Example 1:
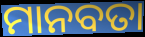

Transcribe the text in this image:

ମାନବତା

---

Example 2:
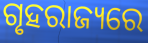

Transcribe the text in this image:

ଗୃହରାଜ୍ୟରେ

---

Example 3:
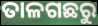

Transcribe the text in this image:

ତାଳଗଛରୁ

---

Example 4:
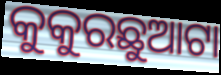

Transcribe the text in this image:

କୁକୁରଛୁଆଟା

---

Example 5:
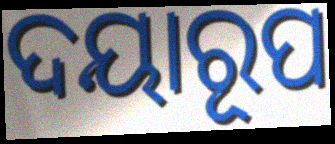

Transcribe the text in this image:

ଦୟାରୂପ